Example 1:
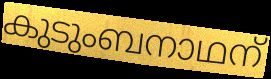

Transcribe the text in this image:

കുടുംബനാഥന്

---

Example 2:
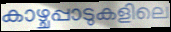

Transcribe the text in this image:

കാഴ്ചപ്പാടുകളിലെ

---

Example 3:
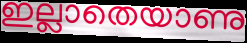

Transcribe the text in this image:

ഇല്ലാതെയാണു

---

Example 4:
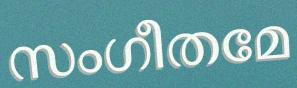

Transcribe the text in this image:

സംഗീതമേ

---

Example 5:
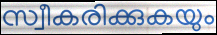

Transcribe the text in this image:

സ്വീകരിക്കുകയും